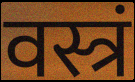
वस्त्रं